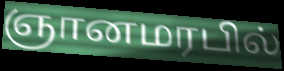
ஞானமரபில்